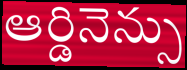
ఆర్డినెన్సు